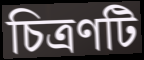
চিত্রণটি